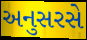
અનુસરસે